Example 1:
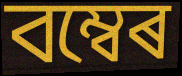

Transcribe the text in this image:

বম্বেৰ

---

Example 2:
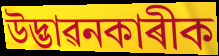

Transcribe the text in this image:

উদ্ভাৱনকাৰীক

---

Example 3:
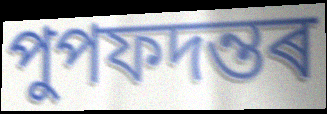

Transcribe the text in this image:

পুপফদন্তৰ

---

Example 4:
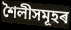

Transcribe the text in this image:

শৈলীসমূহৰ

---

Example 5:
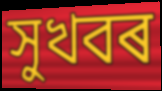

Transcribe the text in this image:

সুখবৰ